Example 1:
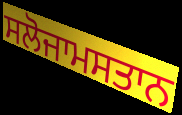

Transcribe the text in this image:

ਸਲੋਜਾਮਸਤਾਨ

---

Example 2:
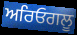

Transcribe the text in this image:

ਅਰਿਓਗਲੂ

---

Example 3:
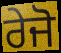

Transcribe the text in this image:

ਰੇਜੋ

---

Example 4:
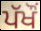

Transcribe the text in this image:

ਪੱਖੌਂ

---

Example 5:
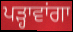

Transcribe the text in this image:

ਪੜ੍ਹਾਵਾਂਗਾ